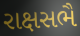
રાક્ષસભૈ